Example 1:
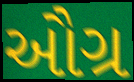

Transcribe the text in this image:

ઔગ્ર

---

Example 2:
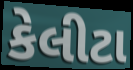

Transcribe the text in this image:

કેલીટા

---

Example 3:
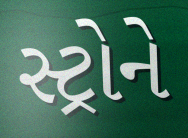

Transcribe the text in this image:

સ્ટ્રોને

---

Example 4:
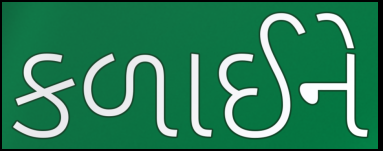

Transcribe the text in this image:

કળાઈને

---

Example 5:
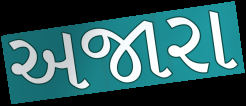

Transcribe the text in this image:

અજારા